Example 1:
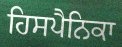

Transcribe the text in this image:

ਹਿਸਪੈਨਿਕਾ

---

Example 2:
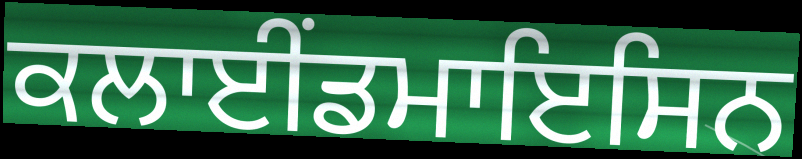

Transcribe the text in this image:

ਕਲਾਈਂਡਮਾਇਸਿਨ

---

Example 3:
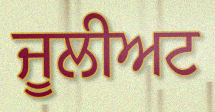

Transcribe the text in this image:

ਜੂਲੀਅਟ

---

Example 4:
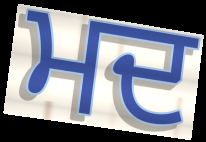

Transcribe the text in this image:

ਮਦ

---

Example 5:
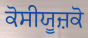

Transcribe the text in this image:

ਕੋਸੀਯੂਜ਼ਕੋ